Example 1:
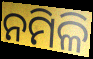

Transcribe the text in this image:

ନମିଳି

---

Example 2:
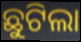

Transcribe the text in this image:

ଛୁଟିଲା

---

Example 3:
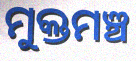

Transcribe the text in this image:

ମୁକ୍ତମଞ୍ଚ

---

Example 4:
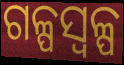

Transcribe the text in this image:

ଗଳ୍ପସ୍ୱଳ୍ପ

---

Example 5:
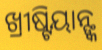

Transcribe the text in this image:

ଖ୍ରୀଷ୍ଟିୟାନ୍ଙ୍କ